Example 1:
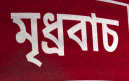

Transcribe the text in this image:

মৃধ্রবাচ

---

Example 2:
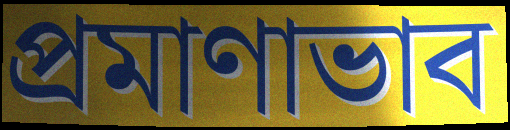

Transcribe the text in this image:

প্রমাণাভাব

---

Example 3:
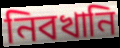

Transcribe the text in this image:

নিবখানি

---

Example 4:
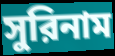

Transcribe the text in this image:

সুরিনাম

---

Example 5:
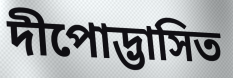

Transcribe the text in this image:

দীপোদ্ভাসিত